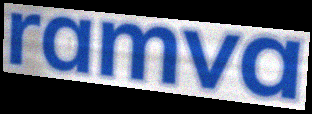
ramva